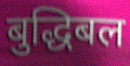
बुद्धिबल